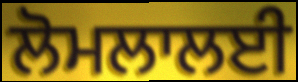
ਲੋਮਲਾਲਈ